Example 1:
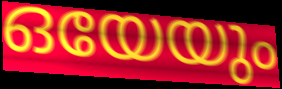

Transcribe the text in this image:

ഒയേയും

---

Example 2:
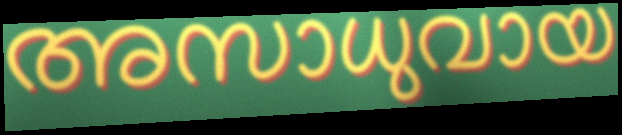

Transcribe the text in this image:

അസാധുവായ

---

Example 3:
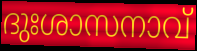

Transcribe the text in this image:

ദുഃശാസനാവ്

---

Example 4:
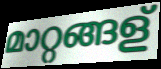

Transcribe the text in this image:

മാറ്റങ്ങള്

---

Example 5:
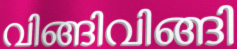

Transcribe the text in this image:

വിങ്ങിവിങ്ങി